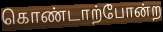
கொண்டாற்போன்ற